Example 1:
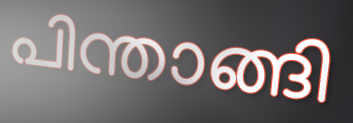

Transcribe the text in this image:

പിന്താങ്ങി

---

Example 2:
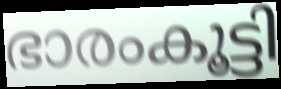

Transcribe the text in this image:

ഭാരംകൂട്ടി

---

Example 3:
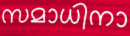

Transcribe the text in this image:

സമാധിനാ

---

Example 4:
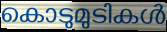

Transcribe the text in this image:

കൊടുമുടികൾ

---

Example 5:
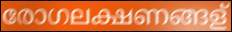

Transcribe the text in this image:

രോഗലക്ഷണങ്ങള്